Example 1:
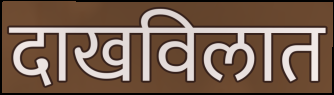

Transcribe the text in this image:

दाखविलात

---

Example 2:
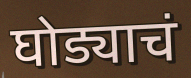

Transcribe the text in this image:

घोड्याचं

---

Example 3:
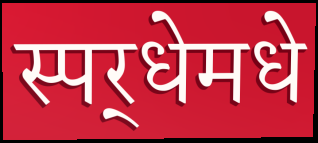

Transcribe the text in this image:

स्पर्धेमधे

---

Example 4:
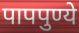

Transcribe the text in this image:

पापपुण्ये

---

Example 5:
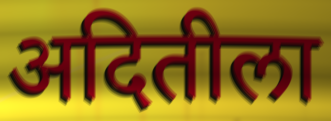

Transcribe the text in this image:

अदितीला